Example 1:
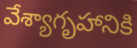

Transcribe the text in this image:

వేశ్యాగృహానికి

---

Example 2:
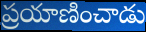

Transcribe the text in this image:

ప్రయాణించాడు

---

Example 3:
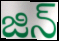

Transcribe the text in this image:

జిన్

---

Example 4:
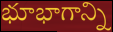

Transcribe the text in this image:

భూభాగాన్ని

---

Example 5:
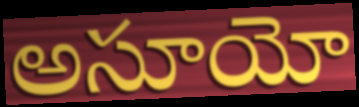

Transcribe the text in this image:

అసూయో